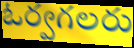
ఓర్వగలరు